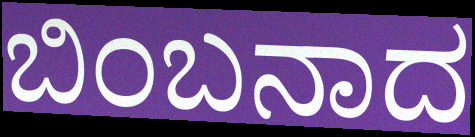
ಬಿಂಬನಾದ